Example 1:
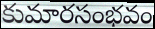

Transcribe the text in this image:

కుమారసంభవం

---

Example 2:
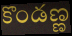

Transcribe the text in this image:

కొండణ్ణ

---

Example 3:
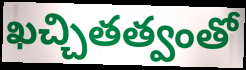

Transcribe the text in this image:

ఖచ్చితత్వంతో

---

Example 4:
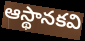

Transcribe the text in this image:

ఆస్థానకవి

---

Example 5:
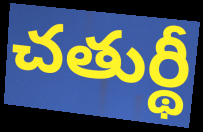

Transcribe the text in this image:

చతుర్థీ